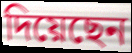
দিয়েছেন